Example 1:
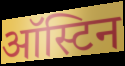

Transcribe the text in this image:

ऑस्टिन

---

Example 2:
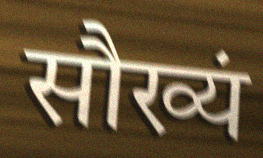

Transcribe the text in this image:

सौख्यं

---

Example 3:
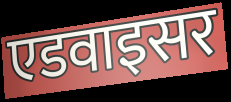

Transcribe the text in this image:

एडवाइसर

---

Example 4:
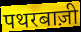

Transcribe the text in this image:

पथरबाज़ी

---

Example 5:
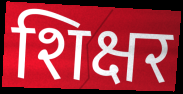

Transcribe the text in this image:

शिक्षर